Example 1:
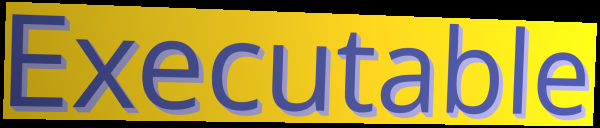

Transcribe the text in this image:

Executable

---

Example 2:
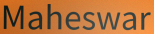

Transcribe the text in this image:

Maheswar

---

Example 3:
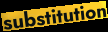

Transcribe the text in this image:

substitution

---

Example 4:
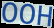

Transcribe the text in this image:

OOH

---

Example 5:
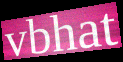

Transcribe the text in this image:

vbhat